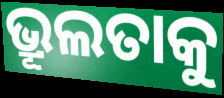
ଭ୍ରୂଲତାକୁ